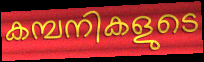
കമ്പനികളുടെ